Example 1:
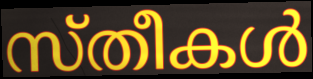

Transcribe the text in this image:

സ്തീകൾ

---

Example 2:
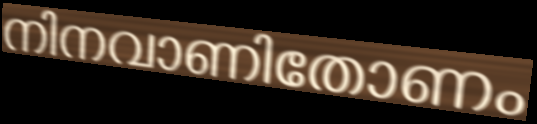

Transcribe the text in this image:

നിനവാണിതോണം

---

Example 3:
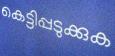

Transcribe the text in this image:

കെട്ടിപ്പടുക്കുക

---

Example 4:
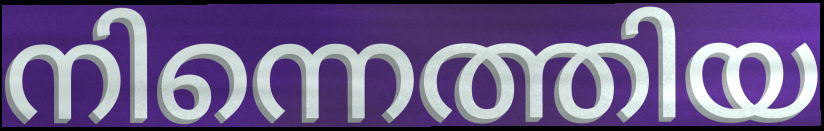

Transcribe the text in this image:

നിന്നെത്തിയ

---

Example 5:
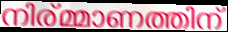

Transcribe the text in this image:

നിര്മ്മാണത്തിന്